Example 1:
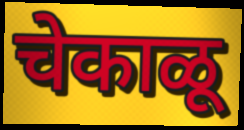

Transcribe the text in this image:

चेकाळू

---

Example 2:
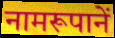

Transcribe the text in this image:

नामरूपानें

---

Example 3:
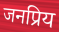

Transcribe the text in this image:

जनप्रिय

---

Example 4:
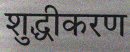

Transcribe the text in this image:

शुद्धीकरण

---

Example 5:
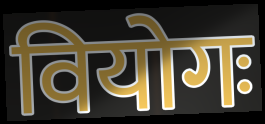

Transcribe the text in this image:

वियोगः